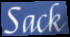
Sack